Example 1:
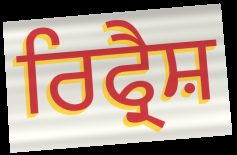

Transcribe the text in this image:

ਰਿਫ੍ਰੈਸ਼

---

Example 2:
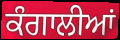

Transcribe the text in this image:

ਕੰਗਾਲੀਆਂ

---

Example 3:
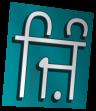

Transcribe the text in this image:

ਜ਼ਿੰ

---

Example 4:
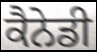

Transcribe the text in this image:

ਕੈਨੇਡੀ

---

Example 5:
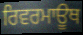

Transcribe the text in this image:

ਰਿਵਰਮਾਊਥ